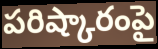
పరిష్కారంపై